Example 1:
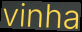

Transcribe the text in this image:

vinha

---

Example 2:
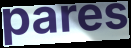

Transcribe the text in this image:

pares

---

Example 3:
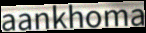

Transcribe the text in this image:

aankhoma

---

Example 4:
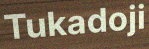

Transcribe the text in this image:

Tukadoji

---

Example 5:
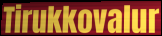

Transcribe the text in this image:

Tirukkovalur